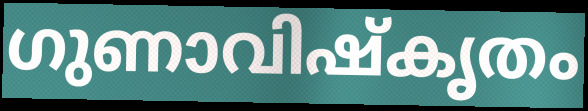
ഗുണാവിഷ്കൃതം